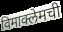
विमाक्लेमची